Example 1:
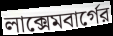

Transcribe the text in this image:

লাক্সেমবার্গের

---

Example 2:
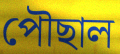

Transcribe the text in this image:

পৌছাল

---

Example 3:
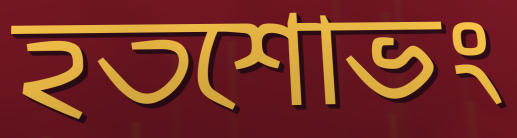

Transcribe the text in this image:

হতশোভং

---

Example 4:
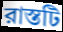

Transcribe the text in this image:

রাস্তটি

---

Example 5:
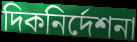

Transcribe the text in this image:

দিকনির্দেশনা